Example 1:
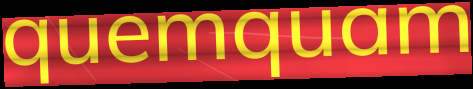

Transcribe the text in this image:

quemquam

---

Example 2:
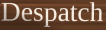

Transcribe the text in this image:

Despatch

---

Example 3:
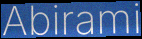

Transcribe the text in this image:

Abirami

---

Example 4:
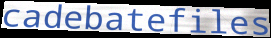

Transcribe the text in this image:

cadebatefiles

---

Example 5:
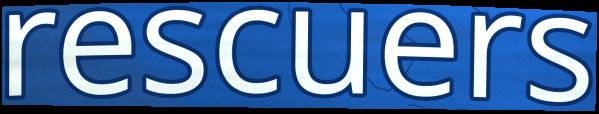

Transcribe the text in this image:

rescuers